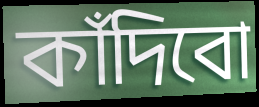
কাঁদিবো